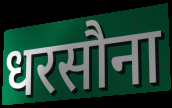
धरसौना